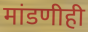
मांडणीही